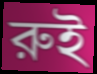
রুই